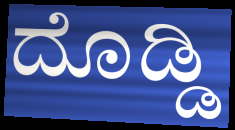
ದೊಡ್ಡಿ